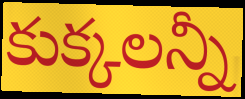
కుక్కలన్నీ